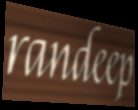
randeep